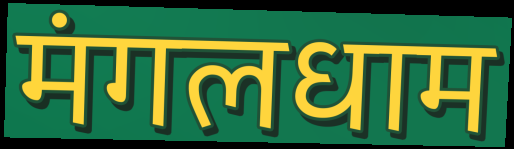
मंगलधाम